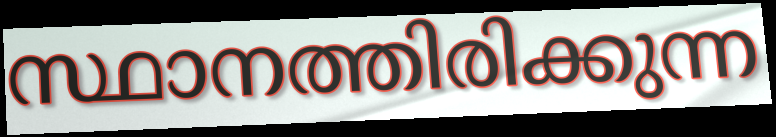
സ്ഥാനത്തിരിക്കുന്ന